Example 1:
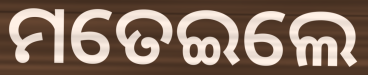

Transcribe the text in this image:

ମତେଇଲେ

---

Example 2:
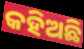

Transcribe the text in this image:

କହିଅଛି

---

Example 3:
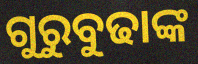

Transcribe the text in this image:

ଗୁରୁବୁଢାଙ୍କ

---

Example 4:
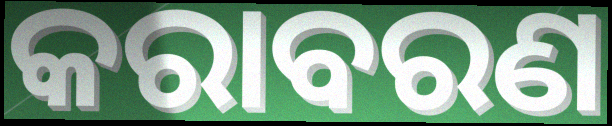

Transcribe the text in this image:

କରାବରଣ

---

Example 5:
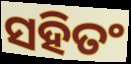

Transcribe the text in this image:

ସହିତଂ